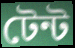
টেন্ট